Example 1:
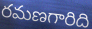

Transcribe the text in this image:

రమణగారిది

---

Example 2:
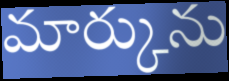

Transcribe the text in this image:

మార్కును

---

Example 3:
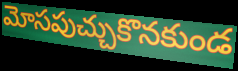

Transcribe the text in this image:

మోసపుచ్చుకొనకుండ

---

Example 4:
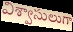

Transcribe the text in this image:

విశ్వాసులుగా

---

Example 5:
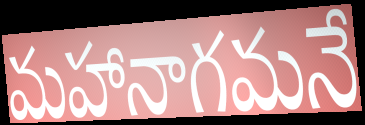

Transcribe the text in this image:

మహానాగమనే